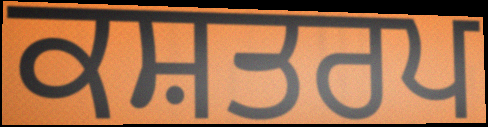
ਕਸ਼ਤਰਪ